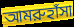
আমরুহাঁসা